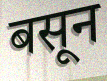
बसून